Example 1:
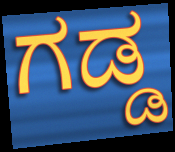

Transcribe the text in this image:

ಗಡ್ಡ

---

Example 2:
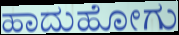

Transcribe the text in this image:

ಹಾದುಹೋಗು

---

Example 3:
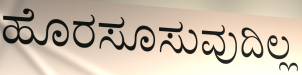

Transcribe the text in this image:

ಹೊರಸೂಸುವುದಿಲ್ಲ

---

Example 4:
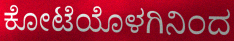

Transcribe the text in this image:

ಕೋಟೆಯೊಳಗಿನಿಂದ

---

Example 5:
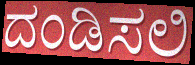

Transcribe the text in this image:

ದಂಡಿಸಲಿ